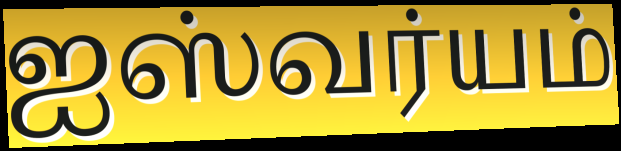
ஐஸ்வர்யம்